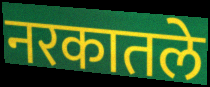
नरकातले